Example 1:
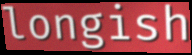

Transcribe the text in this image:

longish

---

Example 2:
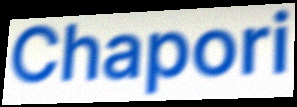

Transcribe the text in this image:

Chapori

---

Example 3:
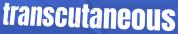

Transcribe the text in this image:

transcutaneous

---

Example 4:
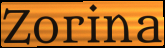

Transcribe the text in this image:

Zorina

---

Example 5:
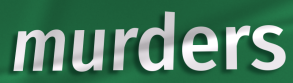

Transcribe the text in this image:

murders